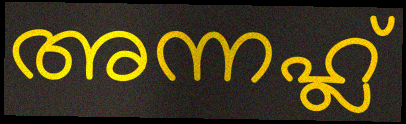
അന്നഹ്ല്